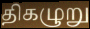
திகழுறு